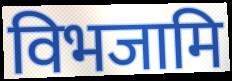
विभजामि